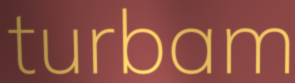
turbam